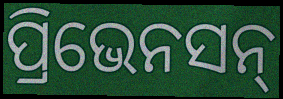
ପ୍ରିଭେନସନ୍